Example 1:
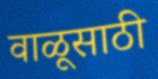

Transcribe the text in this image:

वाळूसाठी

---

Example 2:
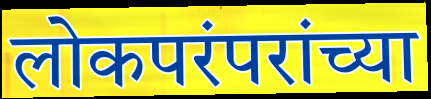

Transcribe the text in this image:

लोकपरंपरांच्या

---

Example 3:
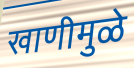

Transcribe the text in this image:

खाणीमुळे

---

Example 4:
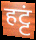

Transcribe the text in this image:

हट्टं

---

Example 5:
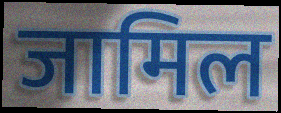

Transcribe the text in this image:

जामिल